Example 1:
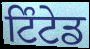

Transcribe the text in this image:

ਟਿੰਟੇਡ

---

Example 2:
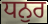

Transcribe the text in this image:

ਧਨੁਰ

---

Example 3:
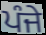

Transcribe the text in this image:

ਪੰਜੇ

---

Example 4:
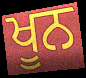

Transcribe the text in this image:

ਖੂਨ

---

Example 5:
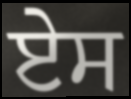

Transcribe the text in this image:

ਏਸ